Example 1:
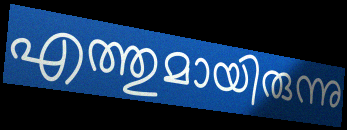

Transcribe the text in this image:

എത്തുമായിരുന്നു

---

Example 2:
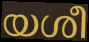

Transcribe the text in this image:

യശീ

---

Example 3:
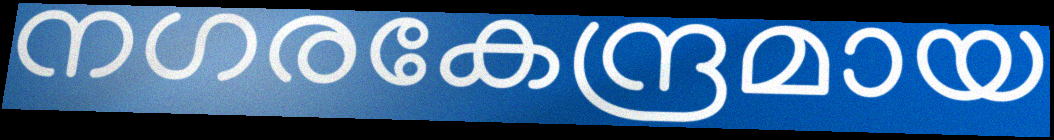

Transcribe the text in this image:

നഗരകേന്ദ്രമായ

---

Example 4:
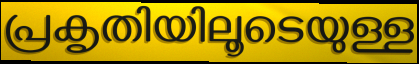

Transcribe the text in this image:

പ്രകൃതിയിലൂടെയുള്ള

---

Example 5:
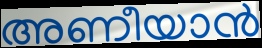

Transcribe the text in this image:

അണീയാൻ